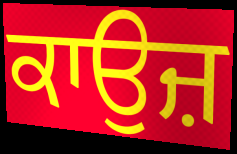
ਕਾਉਜ਼